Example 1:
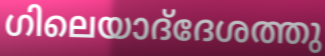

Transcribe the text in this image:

ഗിലെയാദ്‌ദേശത്തു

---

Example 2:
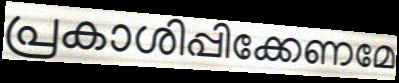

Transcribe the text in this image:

പ്രകാശിപ്പിക്കേണമേ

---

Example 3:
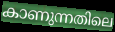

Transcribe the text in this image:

കാണുന്നതിലെ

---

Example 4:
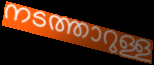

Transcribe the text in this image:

നടത്താറുള്ള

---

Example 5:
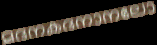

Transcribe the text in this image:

മദനകദനാനലോ